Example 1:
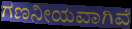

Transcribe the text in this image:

ಗಣನೀಯವಾಗಿವೆ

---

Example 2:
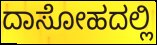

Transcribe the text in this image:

ದಾಸೋಹದಲ್ಲಿ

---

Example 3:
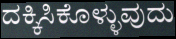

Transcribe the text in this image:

ದಕ್ಕಿಸಿಕೊಳ್ಳುವುದು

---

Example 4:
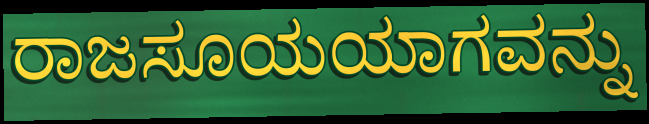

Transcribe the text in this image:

ರಾಜಸೂಯಯಾಗವನ್ನು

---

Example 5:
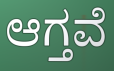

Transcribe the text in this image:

ಆಗ್ತವೆ